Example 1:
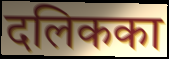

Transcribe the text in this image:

दलिकका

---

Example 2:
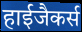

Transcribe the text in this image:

हाईजैकर्स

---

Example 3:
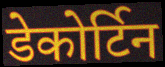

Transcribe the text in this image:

डेकोर्टिन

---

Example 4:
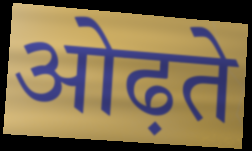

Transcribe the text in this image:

ओढ़ते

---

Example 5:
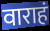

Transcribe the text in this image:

वाराहं